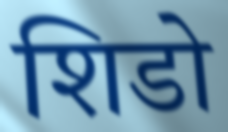
शिडो